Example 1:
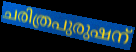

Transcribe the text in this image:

ചരിത്രപുരുഷന്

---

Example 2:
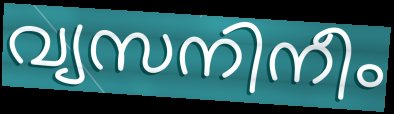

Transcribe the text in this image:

വ്യസനിനീം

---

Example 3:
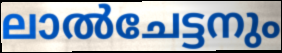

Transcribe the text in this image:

ലാൽചേട്ടനും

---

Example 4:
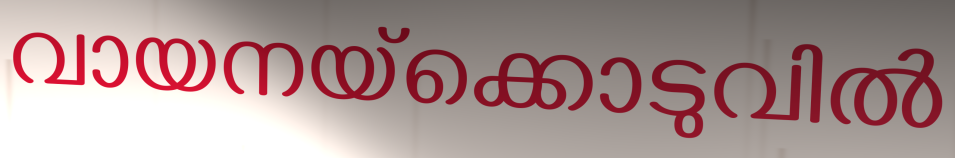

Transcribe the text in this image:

വായനയ്‌ക്കൊടുവിൽ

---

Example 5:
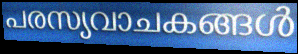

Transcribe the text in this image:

പരസ്യവാചകങ്ങൾ